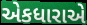
એકધારાએ